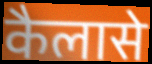
कैलासे